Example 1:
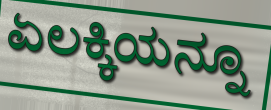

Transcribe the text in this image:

ಏಲಕ್ಕಿಯನ್ನೂ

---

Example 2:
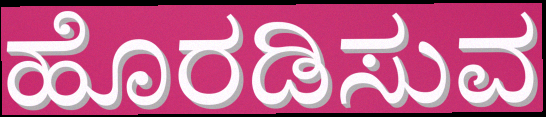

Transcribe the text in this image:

ಹೊರಡಿಸುವ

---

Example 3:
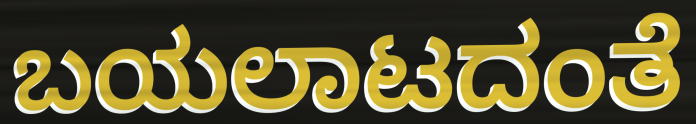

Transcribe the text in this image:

ಬಯಲಾಟದಂತೆ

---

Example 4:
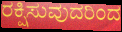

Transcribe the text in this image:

ರಕ್ಷಿಸುವುದರಿಂದ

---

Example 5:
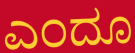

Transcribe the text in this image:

ಎಂದೂ